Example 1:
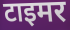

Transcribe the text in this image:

टाइमर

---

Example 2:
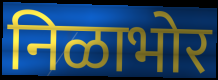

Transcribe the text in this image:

निळाभोर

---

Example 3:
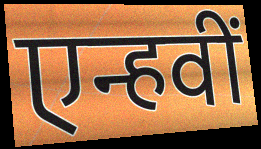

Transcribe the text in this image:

एन्हवीं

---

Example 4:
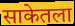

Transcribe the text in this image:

साकेतला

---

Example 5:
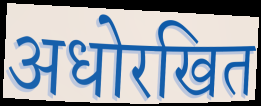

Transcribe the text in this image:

अधोरखित